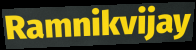
Ramnikvijay